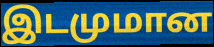
இடமுமான